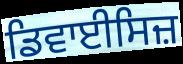
ਡਿਵਾਈਸਿਜ਼